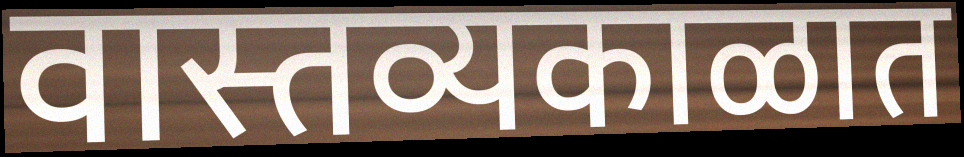
वास्तव्यकाळात